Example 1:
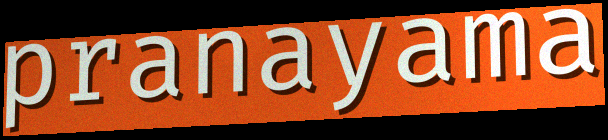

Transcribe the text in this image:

pranayama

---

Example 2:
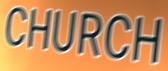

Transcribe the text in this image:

CHURCH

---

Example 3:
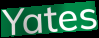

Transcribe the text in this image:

Yates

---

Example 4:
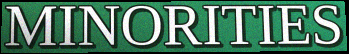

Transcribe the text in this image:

MINORITIES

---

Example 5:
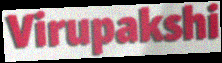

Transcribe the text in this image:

Virupakshi